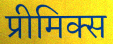
प्रीमिक्स